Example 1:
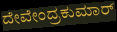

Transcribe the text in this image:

ದೇವೇಂದ್ರಕುಮಾರ್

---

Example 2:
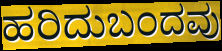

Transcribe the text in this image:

ಹರಿದುಬಂದವು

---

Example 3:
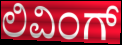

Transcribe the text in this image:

ಲಿವಿಂಗ್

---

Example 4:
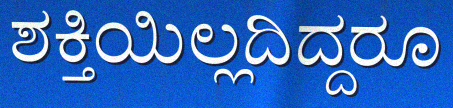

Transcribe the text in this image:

ಶಕ್ತಿಯಿಲ್ಲದಿದ್ದರೂ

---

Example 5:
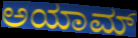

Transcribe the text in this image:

ಅಯಾಮ್